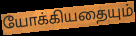
யோக்கியதையும்